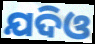
ଯଦିଓ